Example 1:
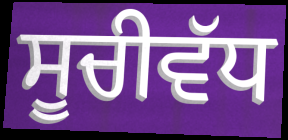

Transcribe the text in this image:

ਸੂਚੀਵੱਧ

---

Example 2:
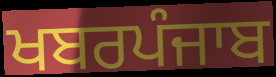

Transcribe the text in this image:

ਖਬਰਪੰਜਾਬ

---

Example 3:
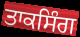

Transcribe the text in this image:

ਤਾਕਸਿੰਗ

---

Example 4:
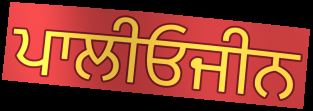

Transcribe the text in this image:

ਪਾਲੀਓਜੀਨ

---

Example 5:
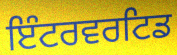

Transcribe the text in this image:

ਇੰਟਰਵਰਟਿਡ